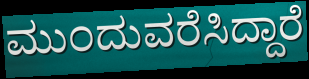
ಮುಂದುವರೆಸಿದ್ದಾರೆ